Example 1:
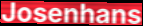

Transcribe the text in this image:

Josenhans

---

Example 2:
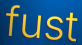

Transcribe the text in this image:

fust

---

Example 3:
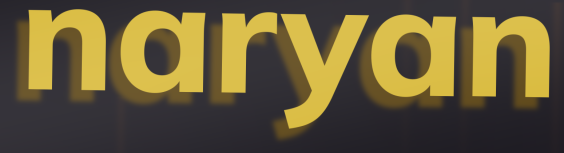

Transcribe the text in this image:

naryan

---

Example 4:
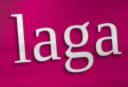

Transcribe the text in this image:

laga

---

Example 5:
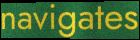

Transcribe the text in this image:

navigates